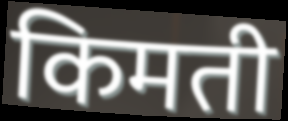
किमती